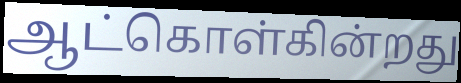
ஆட்கொள்கின்றது